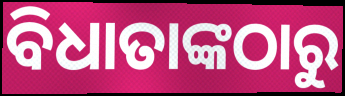
ବିଧାତାଙ୍କଠାରୁ